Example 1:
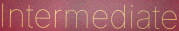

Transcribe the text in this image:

Intermediate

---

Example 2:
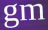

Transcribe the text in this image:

gm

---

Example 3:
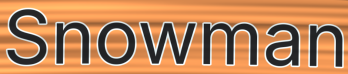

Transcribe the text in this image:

Snowman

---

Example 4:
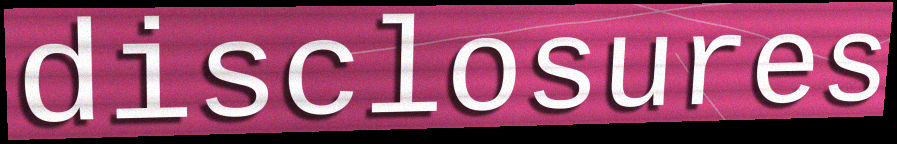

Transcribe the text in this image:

disclosures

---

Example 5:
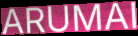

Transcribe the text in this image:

ARUMAI